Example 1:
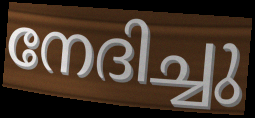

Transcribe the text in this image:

നേദിച്ചു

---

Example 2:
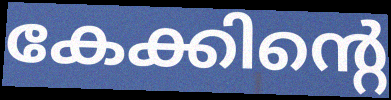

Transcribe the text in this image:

കേക്കിന്റെ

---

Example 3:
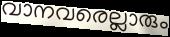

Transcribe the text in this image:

വാനവരെല്ലാരും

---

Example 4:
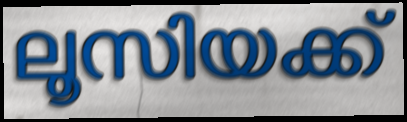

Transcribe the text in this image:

ലൂസിയക്ക്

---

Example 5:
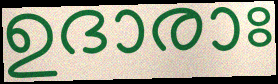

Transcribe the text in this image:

ഉദാരാഃ